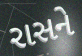
રાસને